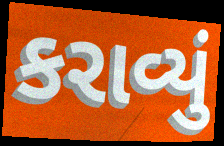
કરાવ્યું